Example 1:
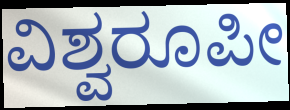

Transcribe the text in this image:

ವಿಶ್ವರೂಪೀ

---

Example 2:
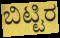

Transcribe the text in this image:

ಬಿಟ್ಟಿರ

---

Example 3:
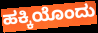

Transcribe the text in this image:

ಹಕ್ಕಿಯೊಂದು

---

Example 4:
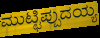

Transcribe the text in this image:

ಮುಟ್ಟಿಪ್ಪುದಯ್ಯ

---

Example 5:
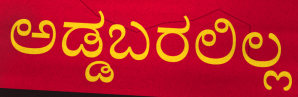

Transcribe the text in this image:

ಅಡ್ಡಬರಲಿಲ್ಲ